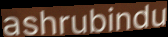
ashrubindu